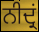
ਨੀਦ੍ਰਂ